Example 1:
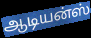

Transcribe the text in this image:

ஆடியன்ஸ்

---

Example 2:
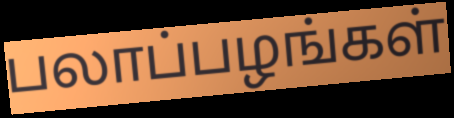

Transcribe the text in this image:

பலாப்பழங்கள்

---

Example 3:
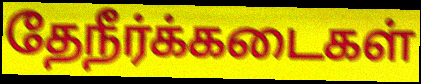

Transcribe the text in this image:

தேநீர்க்கடைகள்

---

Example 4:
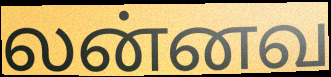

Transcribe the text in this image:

லன்னவ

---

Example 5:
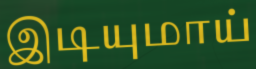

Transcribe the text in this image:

இடியுமாய்